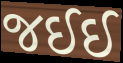
જઈઈ